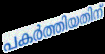
പകർത്തിയതിന്